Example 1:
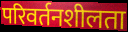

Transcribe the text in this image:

परिवर्तनशीलता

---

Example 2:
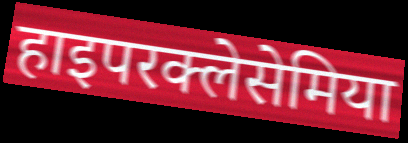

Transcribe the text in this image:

हाइपरक्लेसेमिया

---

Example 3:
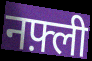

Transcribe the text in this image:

नफ़्ली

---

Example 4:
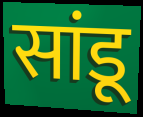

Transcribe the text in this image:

सांडू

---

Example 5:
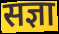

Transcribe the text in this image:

सज्ञा